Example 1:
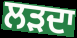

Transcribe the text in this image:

ਲੜਦਾ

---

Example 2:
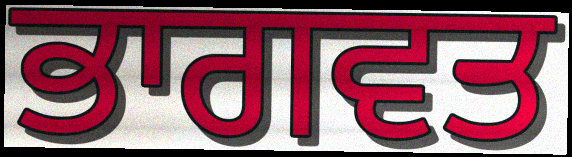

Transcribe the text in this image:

ਭਾਗਵਤ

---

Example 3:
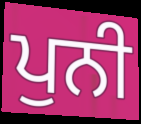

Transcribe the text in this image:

ਪੁਨੀ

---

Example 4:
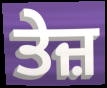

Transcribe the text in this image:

ਤੇਜ਼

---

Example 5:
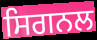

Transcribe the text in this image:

ਸਿਗਨਲ